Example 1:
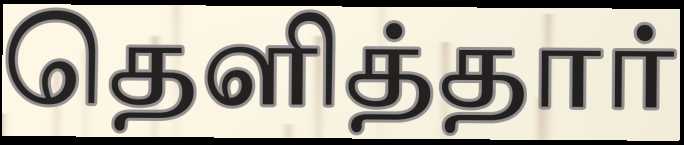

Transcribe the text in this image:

தெளித்தார்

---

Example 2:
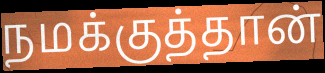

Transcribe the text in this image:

நமக்குத்தான்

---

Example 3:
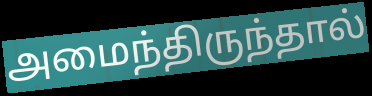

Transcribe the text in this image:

அமைந்திருந்தால்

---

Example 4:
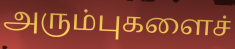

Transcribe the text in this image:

அரும்புகளைச்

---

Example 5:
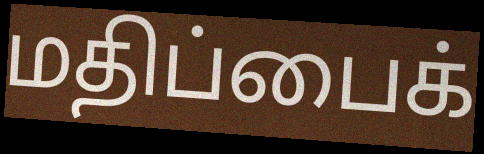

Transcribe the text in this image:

மதிப்பைக்